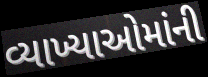
વ્યાખ્યાઓમાંની